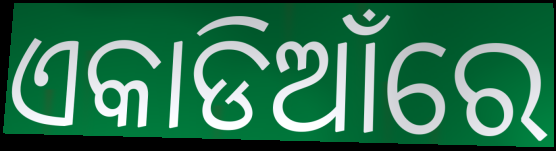
ଏକାଡିଆଁରେ